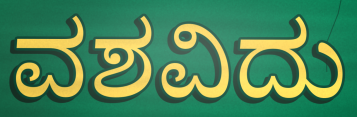
ವಶವಿದು